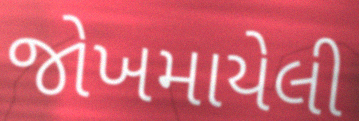
જોખમાયેલી